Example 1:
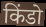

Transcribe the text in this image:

किंडो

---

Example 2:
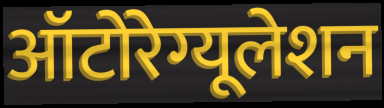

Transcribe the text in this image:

ऑटोरेग्यूलेशन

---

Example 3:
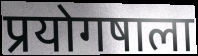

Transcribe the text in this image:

प्रयोगषाला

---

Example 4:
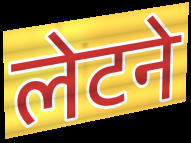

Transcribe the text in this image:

लेटने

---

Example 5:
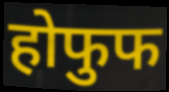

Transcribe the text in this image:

होफुफ